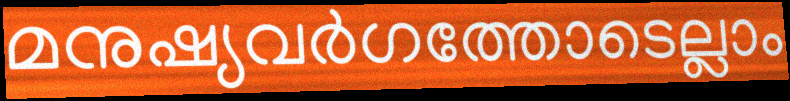
മനുഷ്യവർഗത്തോടെല്ലാം